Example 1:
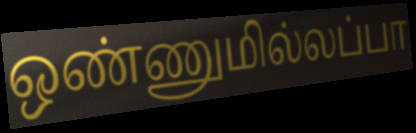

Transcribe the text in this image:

ஒண்ணுமில்லப்பா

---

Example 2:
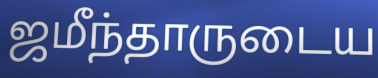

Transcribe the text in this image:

ஜமீந்தாருடைய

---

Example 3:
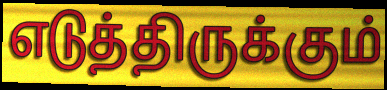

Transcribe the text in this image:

எடுத்திருக்கும்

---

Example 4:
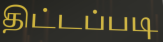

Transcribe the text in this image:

திட்டப்படி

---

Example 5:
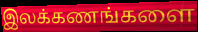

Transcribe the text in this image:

இலக்கணங்களை